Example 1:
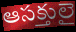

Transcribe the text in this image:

ఆసక్తులై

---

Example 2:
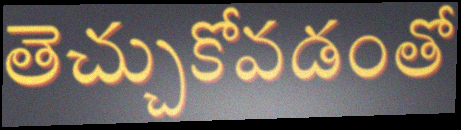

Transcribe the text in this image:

తెచ్చుకోవడంతో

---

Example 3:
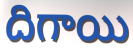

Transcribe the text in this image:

దిగాయి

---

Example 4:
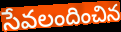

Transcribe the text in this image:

సేవలందించిన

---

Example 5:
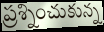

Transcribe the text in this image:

ప్రశ్నించుకున్న